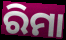
ରିମା